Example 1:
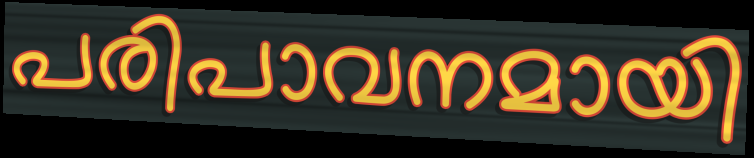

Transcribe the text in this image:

പരിപാവനമായി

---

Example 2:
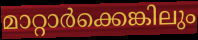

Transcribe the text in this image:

മാറ്റാർക്കെങ്കിലും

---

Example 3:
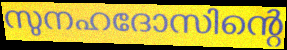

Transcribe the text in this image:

സുനഹദോസിന്റെ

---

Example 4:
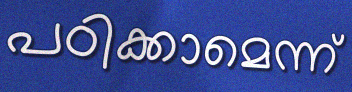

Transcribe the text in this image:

പഠിക്കാമെന്ന്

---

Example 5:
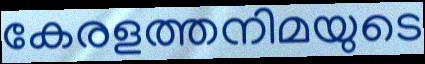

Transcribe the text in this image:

കേരളത്തനിമയുടെ